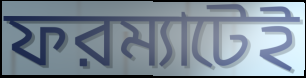
ফরম্যাটেই